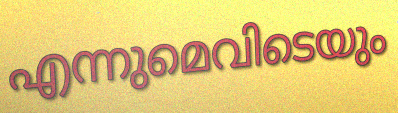
എന്നുമെവിടെയും